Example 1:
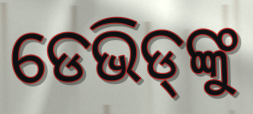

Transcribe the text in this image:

ଡେଭିଡ୍‌ଙ୍କୁ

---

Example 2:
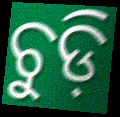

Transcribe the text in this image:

ଚୁଡ଼ି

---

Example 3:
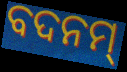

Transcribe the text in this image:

ବଦନମ୍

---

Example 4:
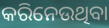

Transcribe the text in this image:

କରିନେଉଥିବା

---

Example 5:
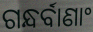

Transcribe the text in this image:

ଗନ୍ଧର୍ବାଣାଂ